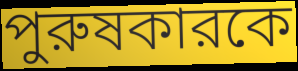
পুরুষকারকে